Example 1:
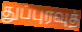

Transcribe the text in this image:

துப்புரவுத்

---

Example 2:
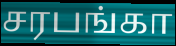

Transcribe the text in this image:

சரபங்கா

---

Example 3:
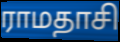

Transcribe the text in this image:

ராமதாசி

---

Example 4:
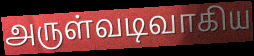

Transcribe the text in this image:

அருள்வடிவாகிய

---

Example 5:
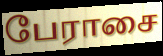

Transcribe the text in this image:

பேராசை